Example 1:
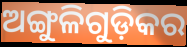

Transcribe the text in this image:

ଅଙ୍ଗୁଳିଗୁଡ଼ିକର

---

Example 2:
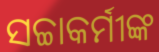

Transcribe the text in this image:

ସଚ୍ଚାକର୍ମୀଙ୍କ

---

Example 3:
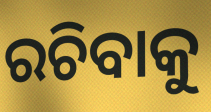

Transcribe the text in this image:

ରଚିବାକୁ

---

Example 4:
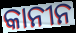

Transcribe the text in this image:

କାନୀନ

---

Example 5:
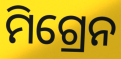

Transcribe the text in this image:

ମିଗ୍ରେନ